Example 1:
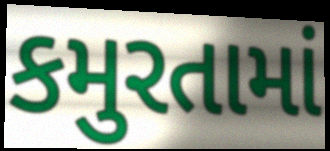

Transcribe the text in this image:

કમુરતામાં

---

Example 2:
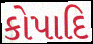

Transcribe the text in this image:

કોપાદિ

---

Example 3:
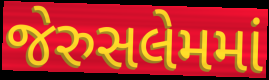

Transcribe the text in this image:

જેરુસલેમમાં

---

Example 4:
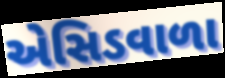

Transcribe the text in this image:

એસિડવાળા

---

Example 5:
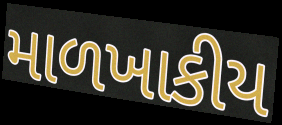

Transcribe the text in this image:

માળખાકીય